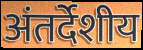
अंतर्देशीय